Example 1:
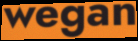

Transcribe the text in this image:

wegan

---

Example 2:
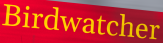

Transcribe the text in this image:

Birdwatcher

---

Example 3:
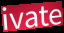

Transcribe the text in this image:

ivate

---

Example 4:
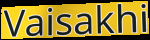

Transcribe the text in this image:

Vaisakhi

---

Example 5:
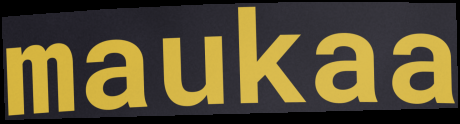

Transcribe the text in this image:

maukaa